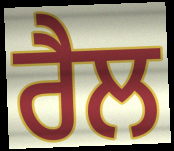
ਰੈਲ